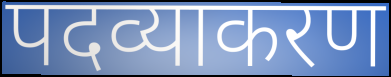
पदव्याकरण